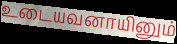
உடையவனாயினும்